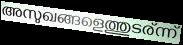
അസുഖങ്ങളെത്തുടര്ന്ന്